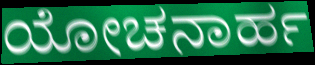
ಯೋಚನಾರ್ಹ